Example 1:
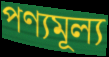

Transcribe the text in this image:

পণ্যমূল্য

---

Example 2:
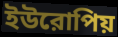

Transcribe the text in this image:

ইউরোপিয়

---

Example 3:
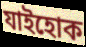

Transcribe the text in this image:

যাইহোক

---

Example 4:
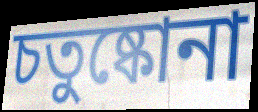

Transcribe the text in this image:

চতুষ্কোনা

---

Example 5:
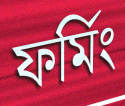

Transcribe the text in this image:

ফর্মিং